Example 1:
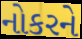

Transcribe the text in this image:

નોકરને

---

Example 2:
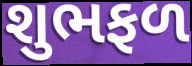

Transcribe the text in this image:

શુભફળ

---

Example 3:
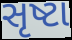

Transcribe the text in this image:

સૃષ્ટા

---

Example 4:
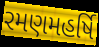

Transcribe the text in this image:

રમણમહર્ષિ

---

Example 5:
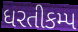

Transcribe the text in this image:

ધરતીકમ્પ